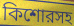
কিশোরসহ